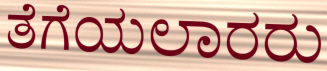
ತೆಗೆಯಲಾರರು